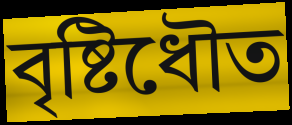
বৃষ্টিধৌত